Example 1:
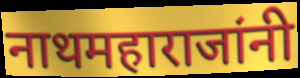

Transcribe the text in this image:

नाथमहाराजांनी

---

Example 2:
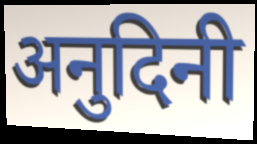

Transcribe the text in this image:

अनुदिनी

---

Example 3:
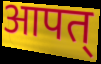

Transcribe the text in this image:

आपत्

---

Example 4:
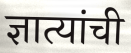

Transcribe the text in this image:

ज्ञात्यांची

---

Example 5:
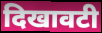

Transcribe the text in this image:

दिखावटी